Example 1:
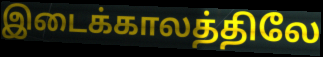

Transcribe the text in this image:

இடைக்காலத்திலே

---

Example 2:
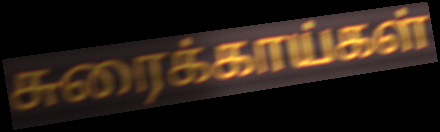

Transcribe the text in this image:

சுரைக்காய்கள்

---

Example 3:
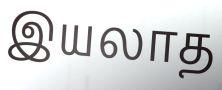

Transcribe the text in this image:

இயலாத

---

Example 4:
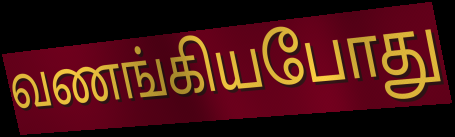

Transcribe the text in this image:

வணங்கியபோது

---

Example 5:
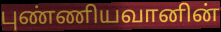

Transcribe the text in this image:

புண்ணியவானின்